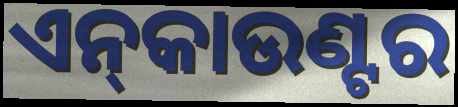
ଏନ୍‌କାଉଣ୍ଟର